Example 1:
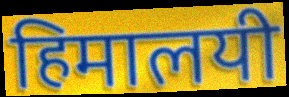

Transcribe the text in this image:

हिमालयी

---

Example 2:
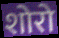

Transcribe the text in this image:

शोरो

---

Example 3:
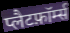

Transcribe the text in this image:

प्लैटफ़ॉर्म्स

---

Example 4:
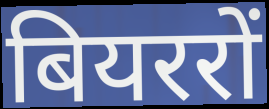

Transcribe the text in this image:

बियररों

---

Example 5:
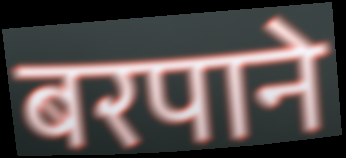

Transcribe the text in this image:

बरपाने